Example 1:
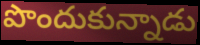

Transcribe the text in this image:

పొందుకున్నాడు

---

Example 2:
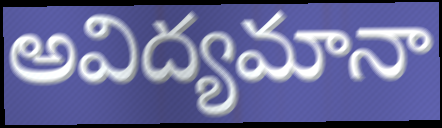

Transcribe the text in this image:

అవిద్యమానా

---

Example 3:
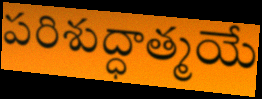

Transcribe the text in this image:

పరిశుద్ధాత్మయే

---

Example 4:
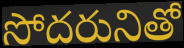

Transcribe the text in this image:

సోదరునితో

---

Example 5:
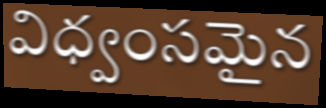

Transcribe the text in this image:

విధ్వంసమైన